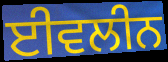
ਈਵਲੀਨ